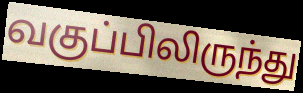
வகுப்பிலிருந்து